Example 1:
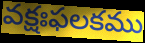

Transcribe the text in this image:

వక్షఃఫలకము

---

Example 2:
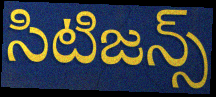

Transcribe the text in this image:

సిటిజన్స్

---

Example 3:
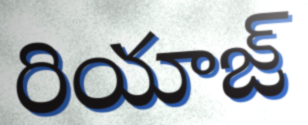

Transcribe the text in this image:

రియాజ్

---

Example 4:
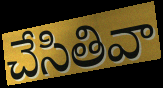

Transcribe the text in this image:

చేసితివా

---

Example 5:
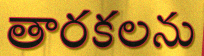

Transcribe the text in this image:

తారకలను